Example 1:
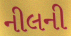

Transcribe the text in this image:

નીલની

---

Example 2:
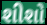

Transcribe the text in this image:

શીશો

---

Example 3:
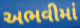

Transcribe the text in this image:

અભવીમાં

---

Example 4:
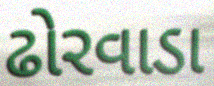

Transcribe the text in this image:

ઢોરવાડા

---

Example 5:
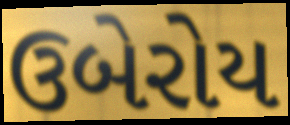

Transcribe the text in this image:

ઉબેરોય